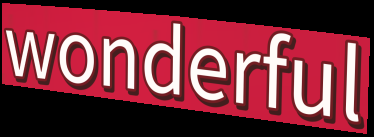
wonderful